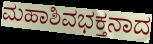
ಮಹಾಶಿವಭಕ್ತನಾದ